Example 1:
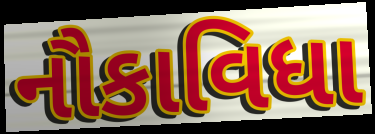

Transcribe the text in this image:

નૌકાવિધા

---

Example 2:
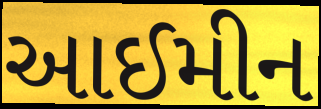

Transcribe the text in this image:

આઈમીન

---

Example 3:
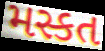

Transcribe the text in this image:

મસ્કત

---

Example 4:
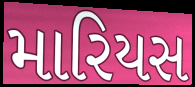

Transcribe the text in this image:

મારિયસ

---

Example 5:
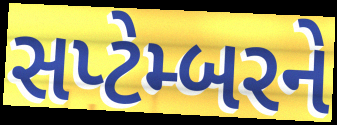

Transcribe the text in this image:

સપ્ટેમ્બરને